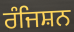
ਰੰਜਿਸ਼ਨ